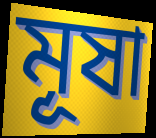
মূষা